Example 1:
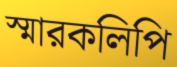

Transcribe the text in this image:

স্মারকলিপি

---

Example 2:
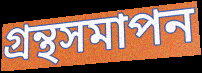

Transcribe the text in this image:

গ্রন্থসমাপন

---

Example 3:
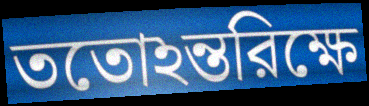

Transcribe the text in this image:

ততোঽন্তরিক্ষে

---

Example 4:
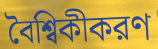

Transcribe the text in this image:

বৈশ্বিকীকরণ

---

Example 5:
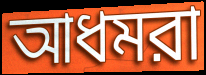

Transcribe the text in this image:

আধমরা